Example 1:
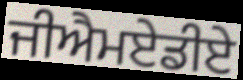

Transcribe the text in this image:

ਜੀਐਮਏਡੀਏ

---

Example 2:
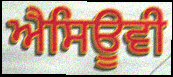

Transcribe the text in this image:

ਐਸਿਊਵੀ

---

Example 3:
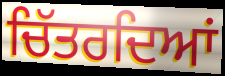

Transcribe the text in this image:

ਚਿੱਤਰਦਿਆਂ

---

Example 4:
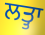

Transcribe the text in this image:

ਲਤ੍ਤਾ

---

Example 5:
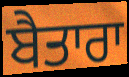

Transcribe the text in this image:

ਬੈਤਾਰਾ